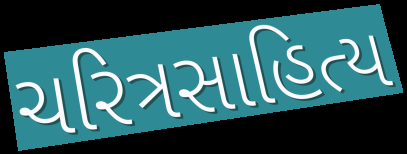
ચરિત્રસાહિત્ય